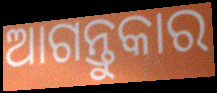
ଆଗନ୍ତୁକାର